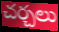
చర్చలు